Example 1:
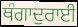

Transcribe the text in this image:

ਥੰਗਾਦੁਰਾਈ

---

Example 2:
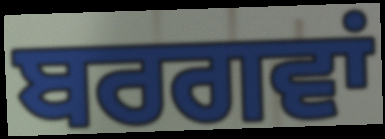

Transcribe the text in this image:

ਬਰਗਵਾਂ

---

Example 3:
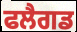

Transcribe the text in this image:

ਫਲੈਗਡ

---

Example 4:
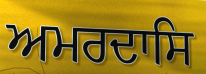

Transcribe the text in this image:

ਅਮਰਦਾਸਿ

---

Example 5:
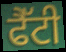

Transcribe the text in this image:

ਫੈੱਟੀ